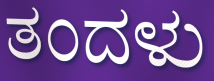
ತಂದಳು